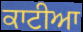
ਕਾਟੀਆ